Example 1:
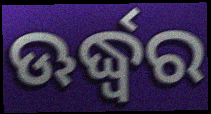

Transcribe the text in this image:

ଊର୍ଦ୍ଧ୍ଵର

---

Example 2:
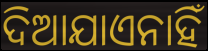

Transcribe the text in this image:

ଦିଆଯାଏନାହିଁ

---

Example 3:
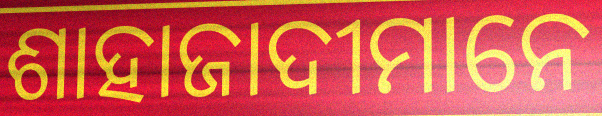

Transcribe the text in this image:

ଶାହାଜାଦୀମାନେ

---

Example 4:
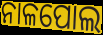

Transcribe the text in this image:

ନାଳପୋଲ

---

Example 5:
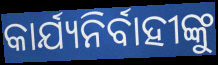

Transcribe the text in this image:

କାର୍ଯ୍ୟନିର୍ବାହୀଙ୍କୁ